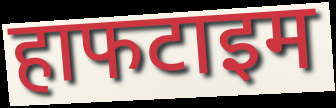
हाफटाइम